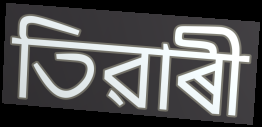
তিৱাৰী